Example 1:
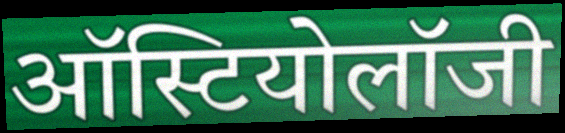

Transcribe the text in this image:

ऑस्टियोलॉजी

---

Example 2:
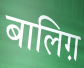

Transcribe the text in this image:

बालिग़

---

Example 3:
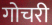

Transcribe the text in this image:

गोचरी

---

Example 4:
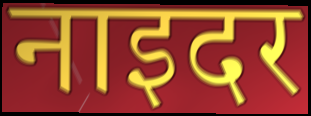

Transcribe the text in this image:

नाइदर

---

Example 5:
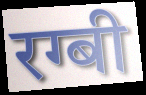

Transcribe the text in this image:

रग्‍बी